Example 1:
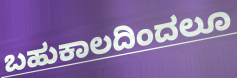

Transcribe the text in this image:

ಬಹುಕಾಲದಿಂದಲೂ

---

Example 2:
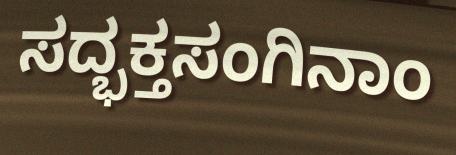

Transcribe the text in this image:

ಸದ್ಭಕ್ತಸಂಗಿನಾಂ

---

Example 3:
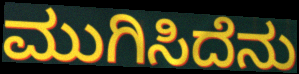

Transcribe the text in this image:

ಮುಗಿಸಿದೆನು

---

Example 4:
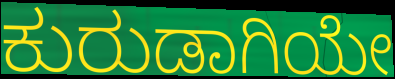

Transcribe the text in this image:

ಕುರುಡಾಗಿಯೇ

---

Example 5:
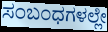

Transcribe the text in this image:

ಸಂಬಂಧಗಳಲ್ಲೇ